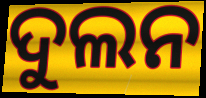
ଦୁଲନ